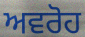
ਅਵਰੋਹ